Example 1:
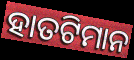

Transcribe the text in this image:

ହାତଟିମାନ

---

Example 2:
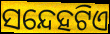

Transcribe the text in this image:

ସନ୍ଦେହଟିଏ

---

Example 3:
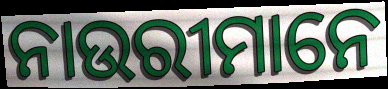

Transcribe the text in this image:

ନାଉରୀମାନେ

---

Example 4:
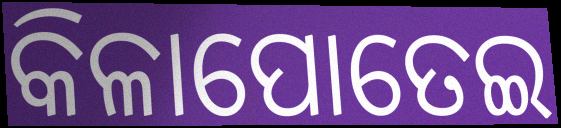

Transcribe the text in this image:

କିଳାପୋତେଇ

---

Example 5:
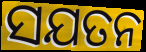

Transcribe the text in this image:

ସଯତନ